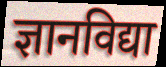
ज्ञानविद्या